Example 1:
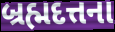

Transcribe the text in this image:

બ્રહ્મદત્તના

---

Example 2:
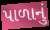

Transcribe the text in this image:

પાળાનું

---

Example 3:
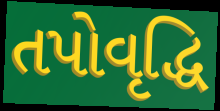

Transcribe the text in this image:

તપોવૃદ્ધિ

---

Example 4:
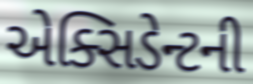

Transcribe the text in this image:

એક્સિડેન્ટની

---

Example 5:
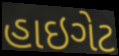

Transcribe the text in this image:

હાઇગેટ